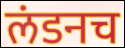
लंडनच